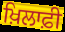
ਖ਼ਿਲਾਫ਼ੀ